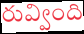
రువ్వింది